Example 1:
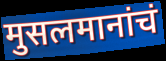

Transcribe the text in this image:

मुसलमानांचं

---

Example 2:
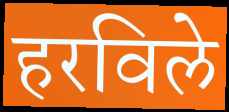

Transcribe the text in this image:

हरविले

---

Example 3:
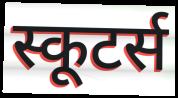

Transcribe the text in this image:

स्कूटर्स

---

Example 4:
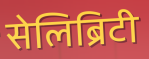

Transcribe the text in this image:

सेलिब्रिटी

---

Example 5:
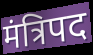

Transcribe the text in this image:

मंत्रिपद